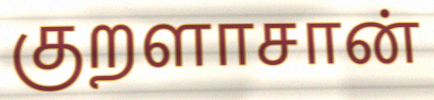
குறளாசான்